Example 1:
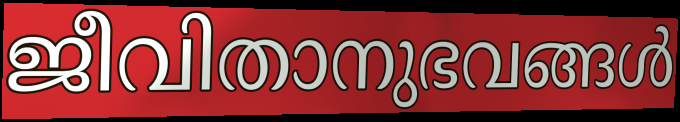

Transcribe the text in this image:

ജീവിതാനുഭവങ്ങൾ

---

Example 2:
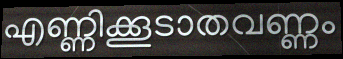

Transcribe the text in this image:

എണ്ണിക്കൂടാതവണ്ണം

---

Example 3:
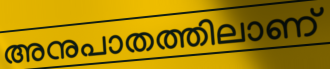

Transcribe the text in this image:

അനുപാതത്തിലാണ്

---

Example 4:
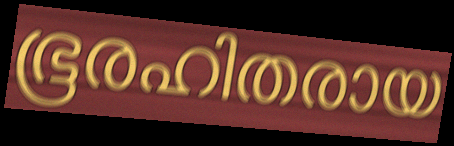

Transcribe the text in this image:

ഭൂരഹിതരായ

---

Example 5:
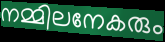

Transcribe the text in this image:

നമ്മിലനേകരും